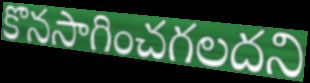
కొనసాగించగలదని